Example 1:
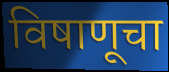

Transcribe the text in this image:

विषाणूचा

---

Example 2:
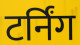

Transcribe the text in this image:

टर्निंग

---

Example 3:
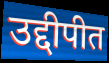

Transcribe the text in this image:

उद्दीपीत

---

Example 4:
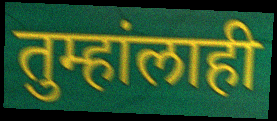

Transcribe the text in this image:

तुम्हांलाही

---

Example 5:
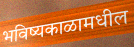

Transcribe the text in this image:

भविष्यकाळामधील